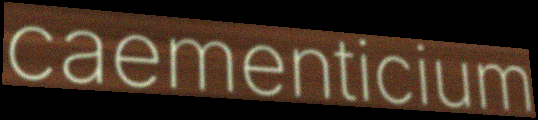
caementicium